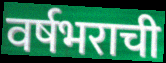
वर्षभराची